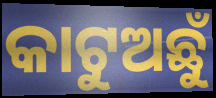
କାଟୁଅଛୁଁ